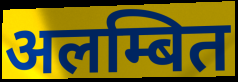
अलम्बित